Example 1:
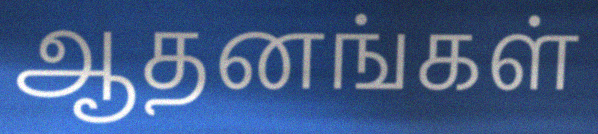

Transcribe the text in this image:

ஆதனங்கள்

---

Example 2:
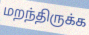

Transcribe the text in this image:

மறந்திருக்க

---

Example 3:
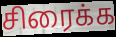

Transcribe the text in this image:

சிரைக்க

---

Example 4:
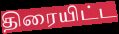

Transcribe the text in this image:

திரையிட்ட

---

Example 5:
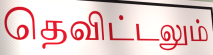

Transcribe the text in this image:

தெவிட்டலும்